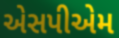
એસપીએમ